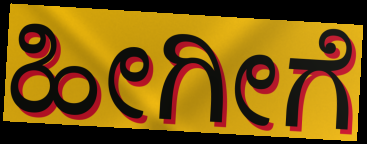
ಹೀಗೀಗೆ